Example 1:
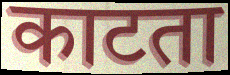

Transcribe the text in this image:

काटता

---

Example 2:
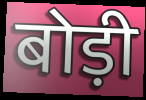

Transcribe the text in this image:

बोड़ी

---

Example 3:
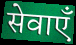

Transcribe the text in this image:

सेवाएँ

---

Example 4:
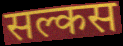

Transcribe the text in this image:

सल्कस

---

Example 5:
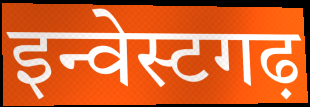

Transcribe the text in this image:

इन्वेस्टगढ़